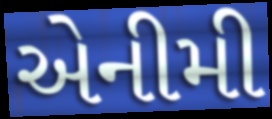
એનીમી